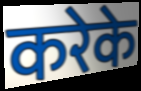
करेके